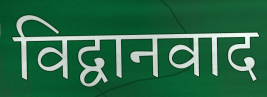
विद्वानवाद